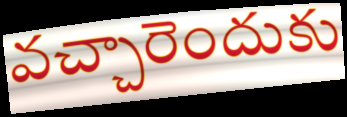
వచ్చారెందుకు